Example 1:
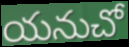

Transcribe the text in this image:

యనుచో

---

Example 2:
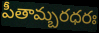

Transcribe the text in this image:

పీతామ్బరధరః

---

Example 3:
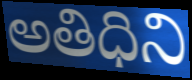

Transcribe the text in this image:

అతిధిని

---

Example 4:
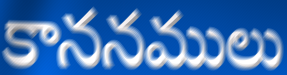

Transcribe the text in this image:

కాననములు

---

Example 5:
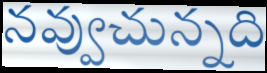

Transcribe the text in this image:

నవ్వుచున్నది